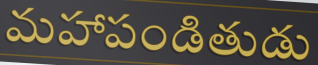
మహాపండితుడు